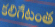
కలిగేటంత